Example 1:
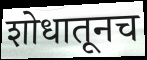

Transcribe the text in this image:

शोधातूनच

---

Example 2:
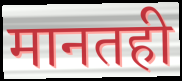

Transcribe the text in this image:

मानतही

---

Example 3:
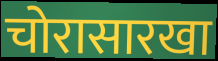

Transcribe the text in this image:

चोरासारखा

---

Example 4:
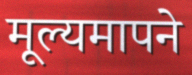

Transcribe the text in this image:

मूल्यमापने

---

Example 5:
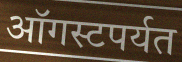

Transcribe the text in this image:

ऑगस्टपर्यत